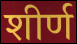
शीर्ण